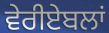
ਵੇਰੀਏਬਲਾਂ